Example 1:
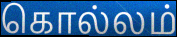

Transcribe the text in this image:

கொல்லம்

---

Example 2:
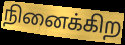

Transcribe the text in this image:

நினைக்கிற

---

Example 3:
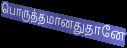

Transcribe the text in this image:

பொருத்தமானதுதானே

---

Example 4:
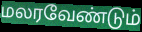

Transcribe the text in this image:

மலரவேண்டும்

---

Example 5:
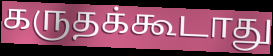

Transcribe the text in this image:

கருதக்கூடாது